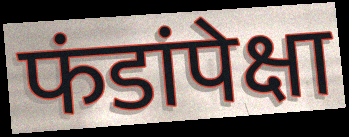
फंडांपेक्षा